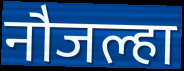
नौजल्हा